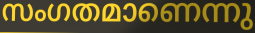
സംഗതമാണെന്നു